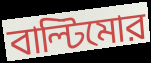
বাল্টিমোর